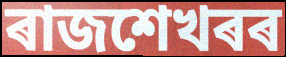
ৰাজশেখৰৰ